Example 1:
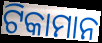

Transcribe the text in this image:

ଟିକାମାନ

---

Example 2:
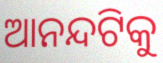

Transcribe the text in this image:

ଆନନ୍ଦଟିକୁ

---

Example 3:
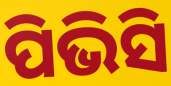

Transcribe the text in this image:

ପିଭିସି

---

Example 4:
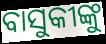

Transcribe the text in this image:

ବାସୁକୀଙ୍କୁ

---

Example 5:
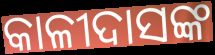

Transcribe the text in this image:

କାଳୀଦାସଙ୍କ